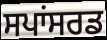
ਸਪਾਂਸਰਡ